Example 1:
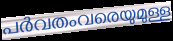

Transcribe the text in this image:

പർവതംവരെയുമുള്ള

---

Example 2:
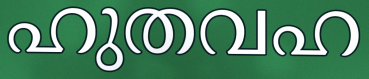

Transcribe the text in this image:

ഹുതവഹ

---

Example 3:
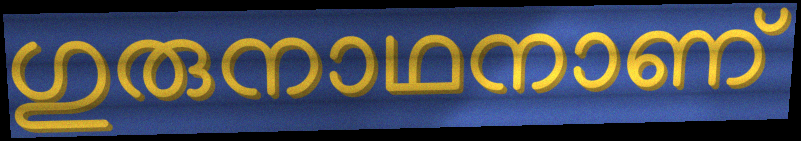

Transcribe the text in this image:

ഗുരുനാഥനാണ്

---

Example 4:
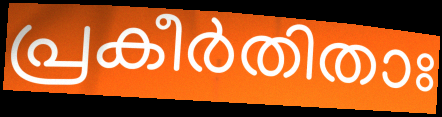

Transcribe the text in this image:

പ്രകീർതിതാഃ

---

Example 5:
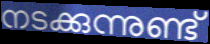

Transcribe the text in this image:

നടക്കുന്നുണ്ട്